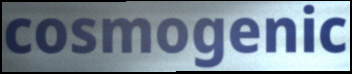
cosmogenic